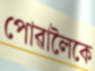
পোৱালৈকে